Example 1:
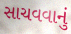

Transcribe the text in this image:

સાચવવાનું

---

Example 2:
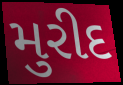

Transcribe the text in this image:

મુરીદ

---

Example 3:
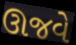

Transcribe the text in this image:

ઊજવે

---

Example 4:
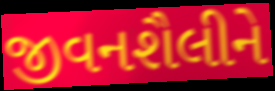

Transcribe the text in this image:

જીવનશૈલીને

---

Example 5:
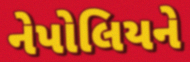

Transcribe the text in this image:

નેપોલિયને